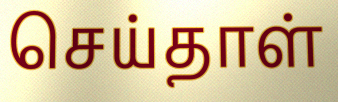
செய்தாள்